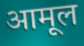
आमूल